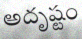
అదృష్టం